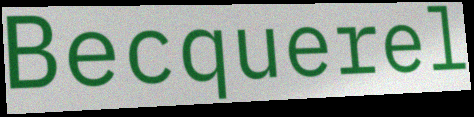
Becquerel